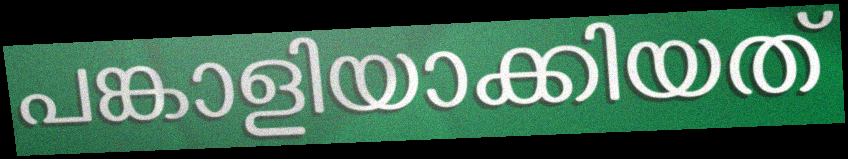
പങ്കാളിയാക്കിയത്